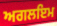
ਅਗਲਇਮ